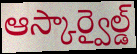
ఆస్కార్వైల్డ్